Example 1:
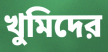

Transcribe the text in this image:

খুমিদের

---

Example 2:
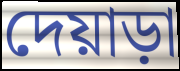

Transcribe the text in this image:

দেয়াড়া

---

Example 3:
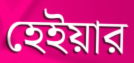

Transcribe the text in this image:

হেইয়ার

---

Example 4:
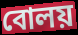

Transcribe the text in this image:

বোলয়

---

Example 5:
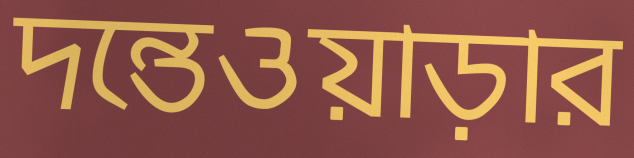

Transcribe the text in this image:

দন্তেওয়াড়ার